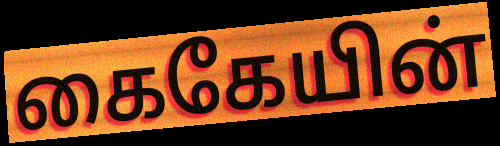
கைகேயின்